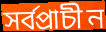
সর্বপ্রাচীন